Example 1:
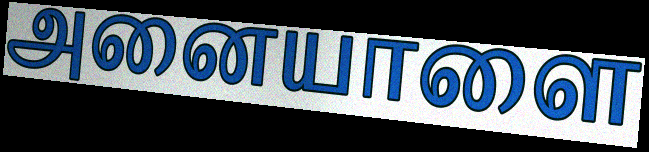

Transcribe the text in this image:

அனையாளை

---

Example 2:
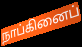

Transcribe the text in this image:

நாப்கினைப்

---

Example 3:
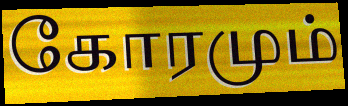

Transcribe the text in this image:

கோரமும்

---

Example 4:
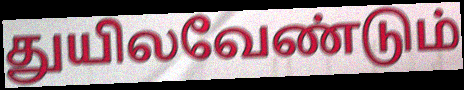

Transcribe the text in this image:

துயிலவேண்டும்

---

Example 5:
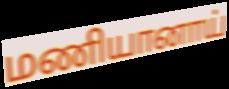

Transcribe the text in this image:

மணியானாய்